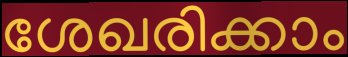
ശേഖരിക്കാം